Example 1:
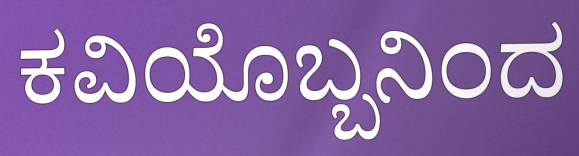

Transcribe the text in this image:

ಕವಿಯೊಬ್ಬನಿಂದ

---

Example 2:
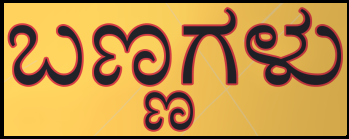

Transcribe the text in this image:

ಬಣ್ಣಗಳು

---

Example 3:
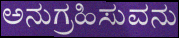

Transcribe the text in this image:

ಅನುಗ್ರಹಿಸುವನು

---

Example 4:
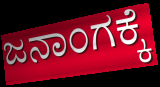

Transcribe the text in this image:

ಜನಾಂಗಕ್ಕೆ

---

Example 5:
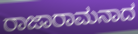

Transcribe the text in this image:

ರಾಜಾರಾಮನಾದ